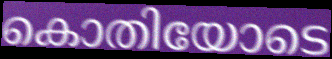
കൊതിയോടെ